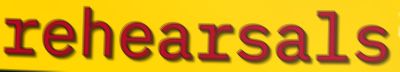
rehearsals